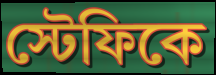
স্টেফিকে